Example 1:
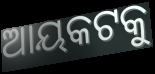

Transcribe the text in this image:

ଆୟକଟକୁ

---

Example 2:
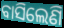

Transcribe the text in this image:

ବାସିଲେଣି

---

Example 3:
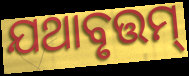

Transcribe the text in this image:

ଯଥାବୃତ୍ତମ୍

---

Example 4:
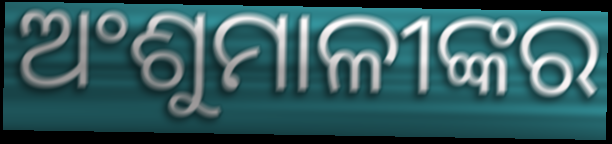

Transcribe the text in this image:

ଅଂଶୁମାଳୀଙ୍କର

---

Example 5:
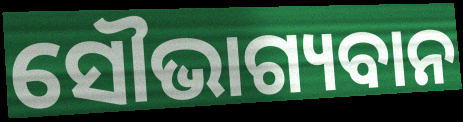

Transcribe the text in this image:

ସୌଭାଗ୍ୟବାନ